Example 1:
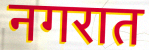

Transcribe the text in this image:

नगरात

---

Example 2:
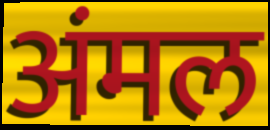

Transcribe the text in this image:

अंमल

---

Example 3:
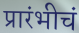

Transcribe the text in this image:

प्रारंभीचं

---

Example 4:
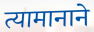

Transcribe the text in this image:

त्यामानाने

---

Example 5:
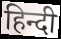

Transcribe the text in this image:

हिन्दी